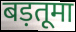
बड़तूमा